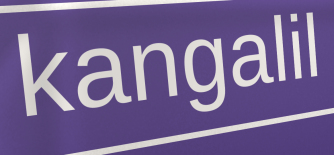
kangalil